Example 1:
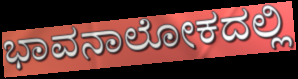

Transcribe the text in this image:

ಭಾವನಾಲೋಕದಲ್ಲಿ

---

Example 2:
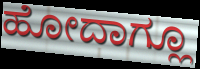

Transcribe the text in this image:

ಹೋದಾಗ್ಲೂ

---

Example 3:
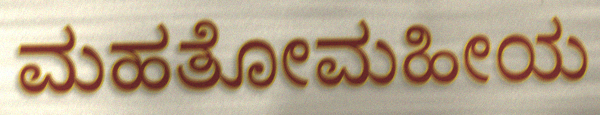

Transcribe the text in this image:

ಮಹತೋಮಹೀಯ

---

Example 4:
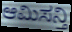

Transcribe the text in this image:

ಆಮಿಸನ್ತಿ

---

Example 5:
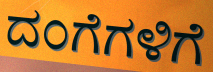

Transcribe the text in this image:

ದಂಗೆಗಳಿಗೆ